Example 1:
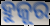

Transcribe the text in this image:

ହୁଜୂର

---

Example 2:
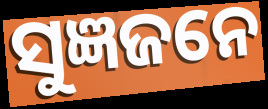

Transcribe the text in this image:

ସୁଜ୍ଞଜନେ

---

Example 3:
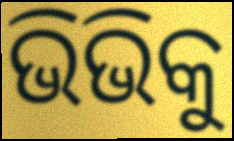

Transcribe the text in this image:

ଭିଭିକୁ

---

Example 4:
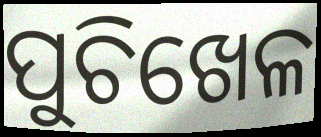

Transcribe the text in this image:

ପୁଚିଖେଳ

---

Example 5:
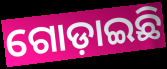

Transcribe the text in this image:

ଗୋଡ଼ାଇଛି